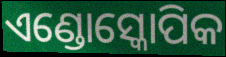
ଏଣ୍ଡୋସ୍କୋପିକ